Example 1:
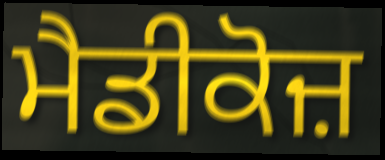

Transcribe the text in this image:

ਮੈਡੀਕੋਜ਼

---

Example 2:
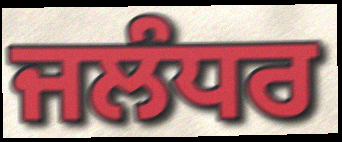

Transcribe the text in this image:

ਜਲੰਧਰ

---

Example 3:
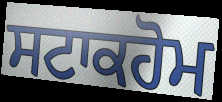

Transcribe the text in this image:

ਸਟਾਕਹੋਮ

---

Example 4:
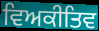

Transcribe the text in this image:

ਵਿਅਕੀਤਿਵ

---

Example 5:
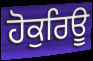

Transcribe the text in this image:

ਹੋਕੁਰਿਊ